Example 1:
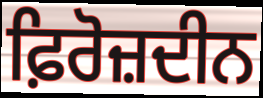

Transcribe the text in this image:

ਫ਼ਿਰੋਜ਼ਦੀਨ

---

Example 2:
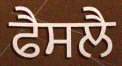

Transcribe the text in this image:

ਫੈਸਲੈ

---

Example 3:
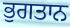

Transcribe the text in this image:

ਭੁਗਤਾਨ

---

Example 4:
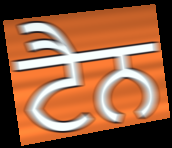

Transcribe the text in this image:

ਟੈਨ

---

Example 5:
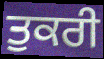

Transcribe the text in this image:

ਤੁਕਰੀ